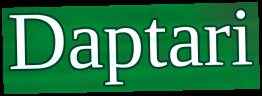
Daptari